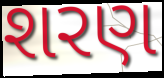
શરણ